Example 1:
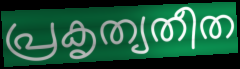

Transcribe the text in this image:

പ്രകൃത്യതീത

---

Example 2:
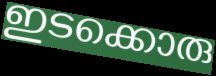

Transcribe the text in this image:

ഇടക്കൊരു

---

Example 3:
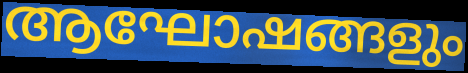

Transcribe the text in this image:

ആഘോഷങ്ങളും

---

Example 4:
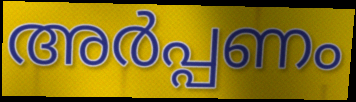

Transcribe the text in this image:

അർപ്പണം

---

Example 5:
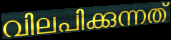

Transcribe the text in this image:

വിലപിക്കുന്നത്